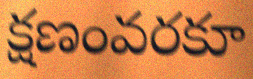
క్షణంవరకూ